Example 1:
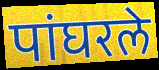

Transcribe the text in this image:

पांघरले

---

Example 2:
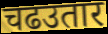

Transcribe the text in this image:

चढउतार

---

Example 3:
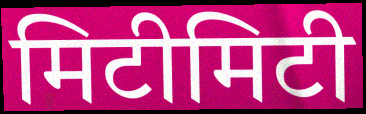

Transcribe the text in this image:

मिटीमिटी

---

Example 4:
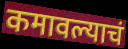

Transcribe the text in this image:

कमावल्याचं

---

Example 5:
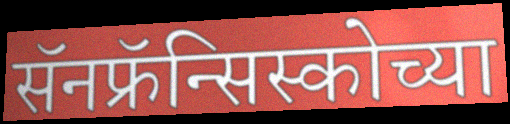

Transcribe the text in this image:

सॅनफ्रॅन्सिस्कोच्या